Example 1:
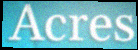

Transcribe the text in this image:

Acres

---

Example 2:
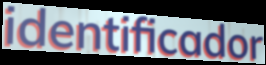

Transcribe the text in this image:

identificador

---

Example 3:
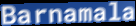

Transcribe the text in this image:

Barnamala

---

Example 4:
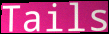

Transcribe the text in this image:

Tails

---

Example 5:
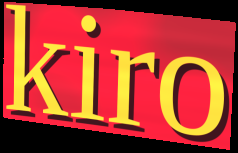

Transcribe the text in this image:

kiro